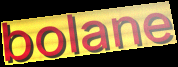
bolane